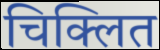
चिक्लित